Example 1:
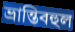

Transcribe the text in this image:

ভ্রান্তিবহুল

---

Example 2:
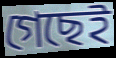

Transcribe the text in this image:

গেছেই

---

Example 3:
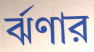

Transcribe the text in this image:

র্ঝণার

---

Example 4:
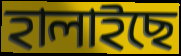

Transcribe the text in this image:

হালাইছে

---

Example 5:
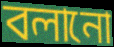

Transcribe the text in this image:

বলানো